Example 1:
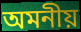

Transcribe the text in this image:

অমনীয়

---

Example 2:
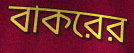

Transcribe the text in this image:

বাকরের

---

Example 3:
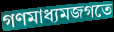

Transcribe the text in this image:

গণমাধ্যমজগতে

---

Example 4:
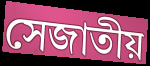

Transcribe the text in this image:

সেজাতীয়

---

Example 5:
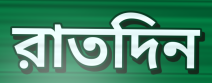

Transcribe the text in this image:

রাতদিন